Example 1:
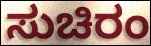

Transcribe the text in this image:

ಸುಚಿರಂ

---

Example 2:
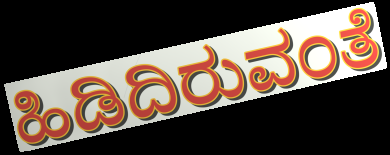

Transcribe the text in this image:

ಹಿಡಿದಿರುವಂತೆ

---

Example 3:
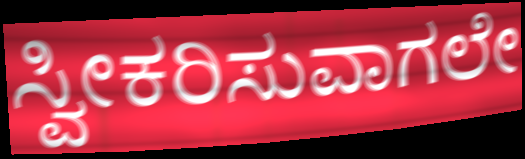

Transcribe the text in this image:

ಸ್ವೀಕರಿಸುವಾಗಲೇ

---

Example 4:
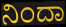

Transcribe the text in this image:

ನಿಂದಾ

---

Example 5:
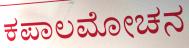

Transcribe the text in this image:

ಕಪಾಲಮೋಚನ